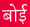
बोई